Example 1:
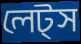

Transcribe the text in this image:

লেট্‌স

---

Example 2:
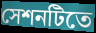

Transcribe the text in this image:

সেশনটিতে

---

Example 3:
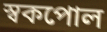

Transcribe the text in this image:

স্বকপোল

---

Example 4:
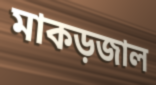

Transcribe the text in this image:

মাকড়জাল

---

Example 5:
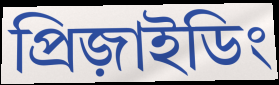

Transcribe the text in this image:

প্রিজ়াইডিং